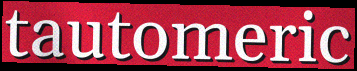
tautomeric